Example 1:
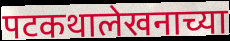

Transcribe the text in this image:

पटकथालेखनाच्या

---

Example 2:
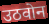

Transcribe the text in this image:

उठवोन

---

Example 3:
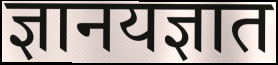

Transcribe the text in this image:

ज्ञानयज्ञात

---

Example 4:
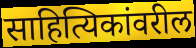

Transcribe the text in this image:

साहित्यिकांवरील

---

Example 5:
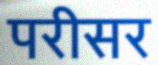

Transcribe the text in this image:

परीसर